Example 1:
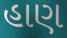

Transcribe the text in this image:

હાણ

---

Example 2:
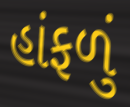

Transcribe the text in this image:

હાંફળું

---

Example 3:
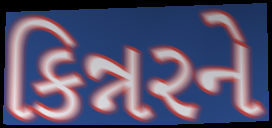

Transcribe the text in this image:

કિન્નરને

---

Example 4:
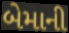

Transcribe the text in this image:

બેમાની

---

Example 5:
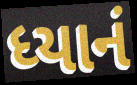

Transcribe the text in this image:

ધ્યાનં